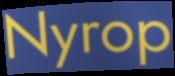
Nyrop